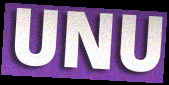
UNU